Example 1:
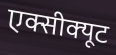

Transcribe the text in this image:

एक्सीक्यूट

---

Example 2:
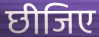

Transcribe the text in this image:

छीजिए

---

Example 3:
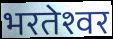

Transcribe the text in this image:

भरतेश्वर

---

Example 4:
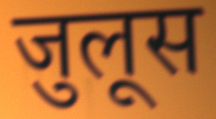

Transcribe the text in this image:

जुलूस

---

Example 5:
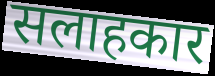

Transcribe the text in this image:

सलाहकार